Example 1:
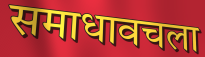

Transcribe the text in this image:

समाधावचला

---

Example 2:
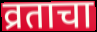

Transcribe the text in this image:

व्रताचा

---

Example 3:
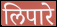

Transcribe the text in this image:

लिपारे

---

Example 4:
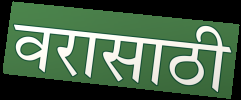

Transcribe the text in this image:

वरासाठी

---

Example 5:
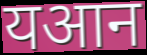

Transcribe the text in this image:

यआन